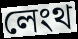
লেংথ